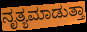
ನೃತ್ಯಮಾಡುತ್ತಾ